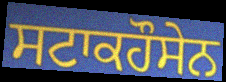
ਸਟਾਕਹੌਸੇਨ